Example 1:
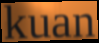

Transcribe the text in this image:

kuan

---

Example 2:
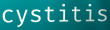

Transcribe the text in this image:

cystitis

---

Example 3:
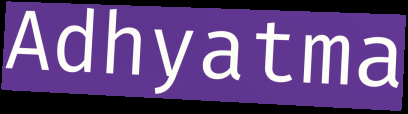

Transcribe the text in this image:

Adhyatma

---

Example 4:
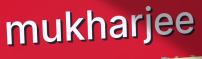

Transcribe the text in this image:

mukharjee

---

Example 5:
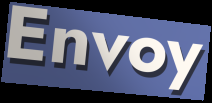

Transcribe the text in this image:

Envoy